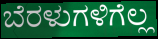
ಬೆರಳುಗಳಿಗೆಲ್ಲ